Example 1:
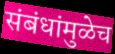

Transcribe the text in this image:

संबंधांमुळेच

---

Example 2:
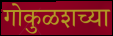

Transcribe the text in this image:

गोकुळशच्या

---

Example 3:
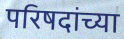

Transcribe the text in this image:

परिषदांच्या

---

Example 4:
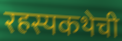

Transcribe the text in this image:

रहस्यकथेची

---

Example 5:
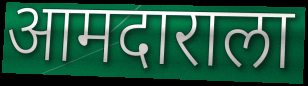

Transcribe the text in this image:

आमदाराला